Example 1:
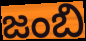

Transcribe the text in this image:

జంబి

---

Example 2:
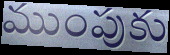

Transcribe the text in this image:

ముంపుకు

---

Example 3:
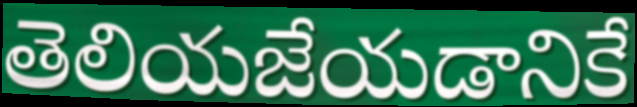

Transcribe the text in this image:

తెలియజేయడానికే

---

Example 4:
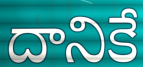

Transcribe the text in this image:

దానికే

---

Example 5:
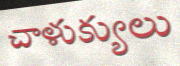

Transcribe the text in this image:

చాళుక్యులు